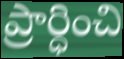
ప్రార్ధించి